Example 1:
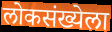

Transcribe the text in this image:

लोकसंख्येला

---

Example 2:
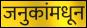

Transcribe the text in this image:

जनुकांमधून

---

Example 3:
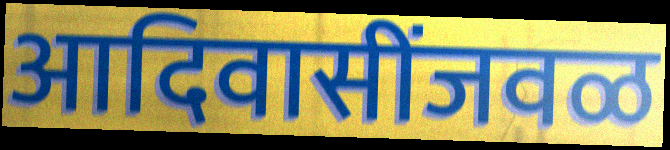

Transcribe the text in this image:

आदिवासींजवळ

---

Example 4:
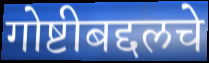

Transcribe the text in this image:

गोष्टीबद्दलचे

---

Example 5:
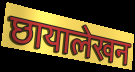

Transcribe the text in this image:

छायालेखन